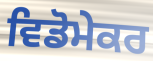
ਵਿਡੋਮੇਕਰ